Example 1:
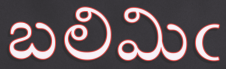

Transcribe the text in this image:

బలిమిఁ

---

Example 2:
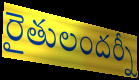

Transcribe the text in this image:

రైతులందర్నీ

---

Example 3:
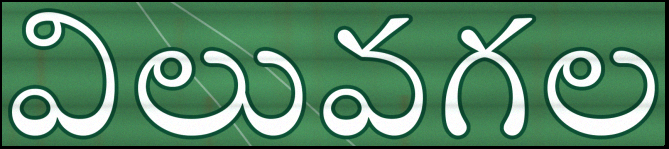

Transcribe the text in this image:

విలువగల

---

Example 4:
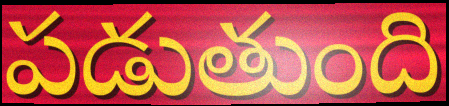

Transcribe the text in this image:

పడుతుంది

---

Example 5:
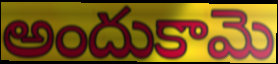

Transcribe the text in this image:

అందుకామె